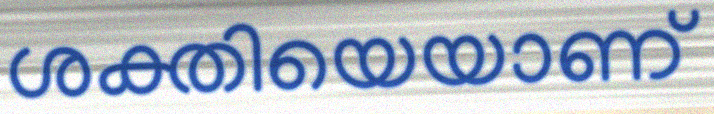
ശക്തിയെയാണ്